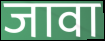
जावा